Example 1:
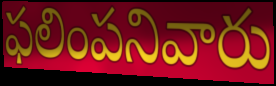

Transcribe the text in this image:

ఫలింపనివారు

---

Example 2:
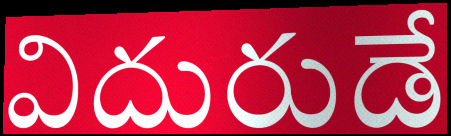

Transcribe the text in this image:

విదురుడే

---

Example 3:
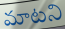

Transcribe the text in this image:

మాటని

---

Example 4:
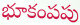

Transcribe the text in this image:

భూకంపపు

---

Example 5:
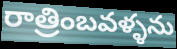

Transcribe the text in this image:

రాత్రింబవళ్ళను